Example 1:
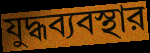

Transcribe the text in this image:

যুদ্ধব্যবস্থার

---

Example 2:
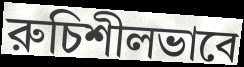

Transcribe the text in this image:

রুচিশীলভাবে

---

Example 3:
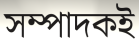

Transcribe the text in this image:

সম্পাদকই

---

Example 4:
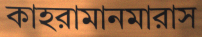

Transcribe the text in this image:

কাহরামানমারাস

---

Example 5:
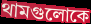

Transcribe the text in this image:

থামগুলোকে